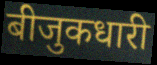
बीजुकधारी